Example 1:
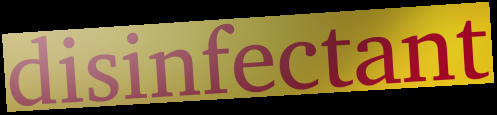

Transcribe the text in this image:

disinfectant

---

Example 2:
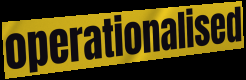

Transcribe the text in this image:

operationalised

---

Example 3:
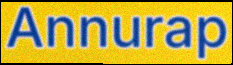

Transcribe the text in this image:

Annurap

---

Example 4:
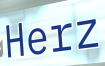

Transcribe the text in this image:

Herz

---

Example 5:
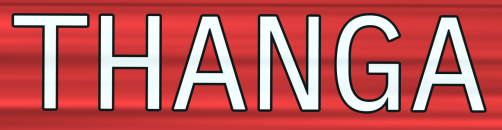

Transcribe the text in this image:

THANGA